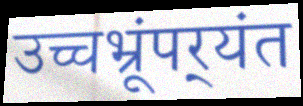
उच्चभ्रूंपर्यंत